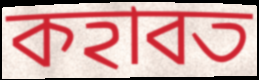
কহাবত